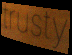
trusty